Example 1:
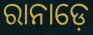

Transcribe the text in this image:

ରାନାଡ଼େ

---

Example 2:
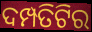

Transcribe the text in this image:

ଦମ୍ପତିଟିର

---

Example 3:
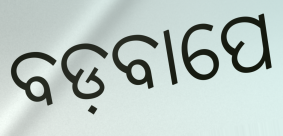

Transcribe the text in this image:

ବଡ଼ବାପେ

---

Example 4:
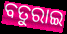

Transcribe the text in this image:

ବତୁରାଇ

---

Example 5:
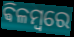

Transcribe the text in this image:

ଵିଳମ୍ବରେ